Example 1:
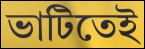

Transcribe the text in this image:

ভাটিতেই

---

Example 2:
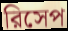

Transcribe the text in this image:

রিসেপ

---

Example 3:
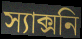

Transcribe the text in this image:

স্যাক্সনি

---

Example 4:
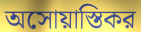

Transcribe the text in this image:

অসোয়াস্তিকর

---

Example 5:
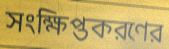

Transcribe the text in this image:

সংক্ষিপ্তকরণের